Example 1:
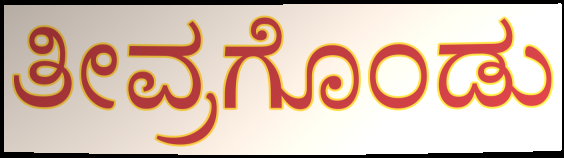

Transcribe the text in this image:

ತೀವ್ರಗೊಂಡು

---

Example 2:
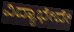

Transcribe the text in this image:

ವಿದ್ಯಾಭೇದೇ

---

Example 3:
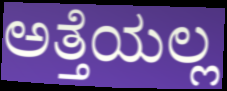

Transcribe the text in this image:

ಅತ್ತೆಯಲ್ಲ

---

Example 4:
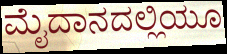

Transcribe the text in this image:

ಮೈದಾನದಲ್ಲಿಯೂ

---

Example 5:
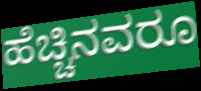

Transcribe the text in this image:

ಹೆಚ್ಚಿನವರೂ